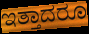
ಇತ್ತಾದರೂ